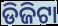
ଡିଜିଟା